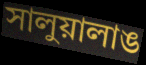
সালুয়ালাঙ